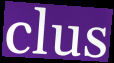
clus